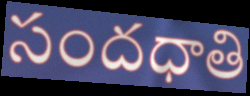
సందధాతి